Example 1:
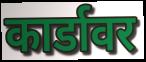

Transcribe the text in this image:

कार्डावर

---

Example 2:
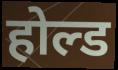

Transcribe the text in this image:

होल्ड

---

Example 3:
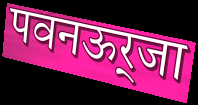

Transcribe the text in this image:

पवनऊर्जा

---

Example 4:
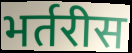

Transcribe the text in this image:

भर्तरीस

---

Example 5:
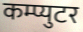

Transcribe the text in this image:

कम्प्युटर